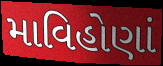
માવિહોણાં